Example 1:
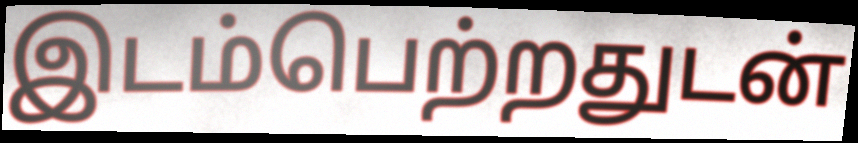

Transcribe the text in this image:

இடம்பெற்றதுடன்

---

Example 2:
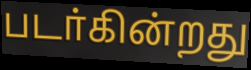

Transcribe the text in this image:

படர்கின்றது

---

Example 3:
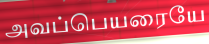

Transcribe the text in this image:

அவப்பெயரையே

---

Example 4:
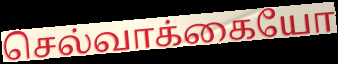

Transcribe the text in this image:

செல்வாக்கையோ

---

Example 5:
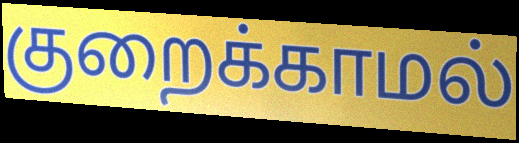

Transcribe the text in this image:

குறைக்காமல்